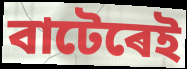
বাটেৰেই